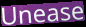
Unease